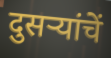
दुसऱ्यांचें